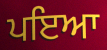
ਪਇਆ